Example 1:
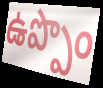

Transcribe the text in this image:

ఉప్పొం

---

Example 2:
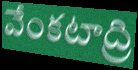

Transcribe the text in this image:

వేంకటాద్రి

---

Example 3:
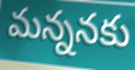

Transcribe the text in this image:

మన్ననకు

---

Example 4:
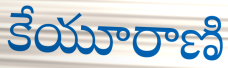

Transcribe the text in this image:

కేయూరాణి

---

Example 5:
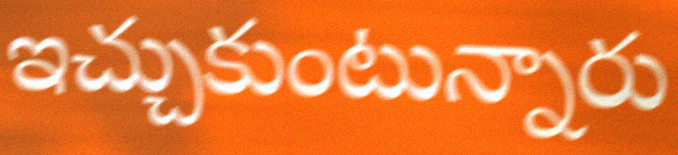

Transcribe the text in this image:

ఇచ్చుకుంటున్నారు